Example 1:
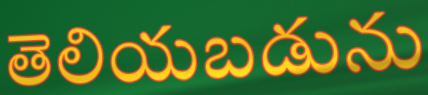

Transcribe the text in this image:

తెలియబడును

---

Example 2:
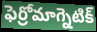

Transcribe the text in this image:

ఫెర్రోమాగ్నెటిక్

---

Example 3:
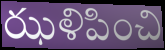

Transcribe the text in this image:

ఝళిపించి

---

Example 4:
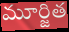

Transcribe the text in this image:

మూర్జిత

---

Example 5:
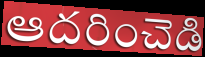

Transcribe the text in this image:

ఆదరించెడి